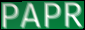
PAPR